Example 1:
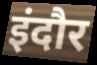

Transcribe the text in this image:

इंदौर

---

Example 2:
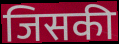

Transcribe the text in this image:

जिसकी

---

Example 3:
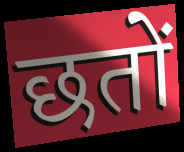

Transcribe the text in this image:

छतों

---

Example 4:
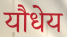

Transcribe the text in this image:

यौधेय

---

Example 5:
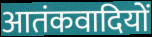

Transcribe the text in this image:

आतंकवादियों